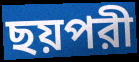
ছয়পরী